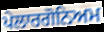
ਪੇਲਾਰਗੋਨਿਅਮ